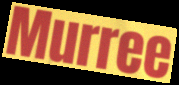
Murree